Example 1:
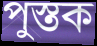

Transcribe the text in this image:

পুস্তক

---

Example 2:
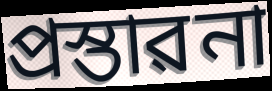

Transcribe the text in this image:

প্ৰস্তাৱনা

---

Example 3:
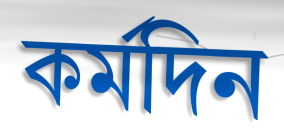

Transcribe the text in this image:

কৰ্মদিন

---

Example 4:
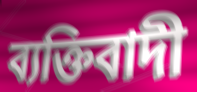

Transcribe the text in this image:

ব্যক্তিবাদী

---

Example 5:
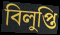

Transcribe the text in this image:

বিলুপ্তি